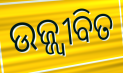
ଉଜ୍ଜ୍ୱୀବିତ